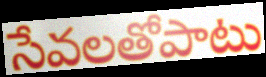
సేవలతోపాటు